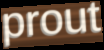
prout